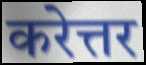
करेत्तर